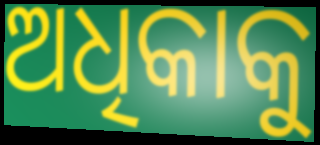
ଅଧିକାକୁ